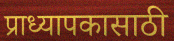
प्राध्यापकासाठी